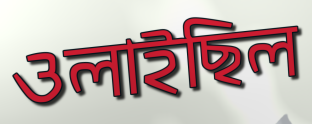
ওলাইছিল